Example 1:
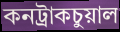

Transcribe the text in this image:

কনট্রাকচুয়াল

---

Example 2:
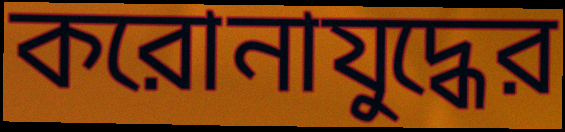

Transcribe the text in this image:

করোনাযুদ্ধের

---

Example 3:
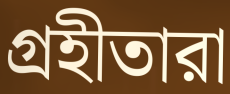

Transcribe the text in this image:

গ্রহীতারা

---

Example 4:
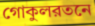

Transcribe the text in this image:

গোকুলরতনে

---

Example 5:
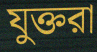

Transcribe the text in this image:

যুক্তরা